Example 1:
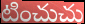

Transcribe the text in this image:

టించుచు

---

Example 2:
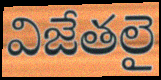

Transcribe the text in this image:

విజేతలై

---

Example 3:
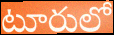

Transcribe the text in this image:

టూరులో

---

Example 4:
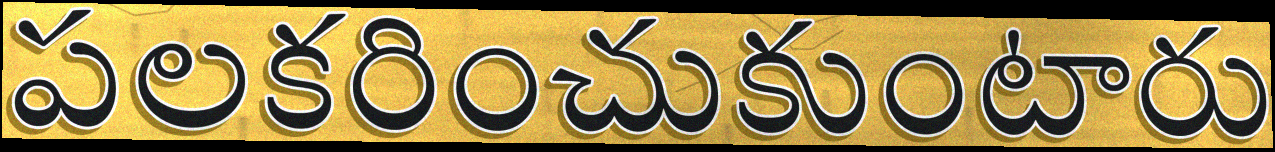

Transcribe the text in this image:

పలకరించుకుంటారు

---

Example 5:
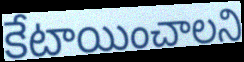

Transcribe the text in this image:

కేటాయించాలని